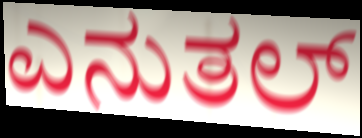
ಎನುತಲ್